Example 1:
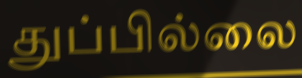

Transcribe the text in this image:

துப்பில்லை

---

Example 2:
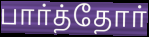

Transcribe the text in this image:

பார்த்தோர்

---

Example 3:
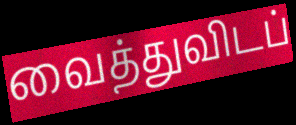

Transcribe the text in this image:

வைத்துவிடப்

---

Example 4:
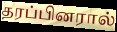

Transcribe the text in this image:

தரப்பினரால்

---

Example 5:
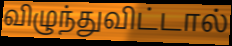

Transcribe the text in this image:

விழுந்துவிட்டால்